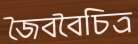
জৈববৈচিত্র